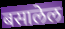
बसालेल